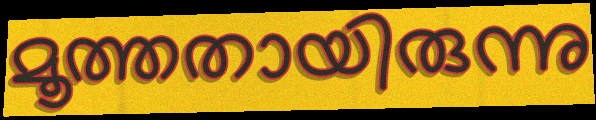
മൂത്തതായിരുന്നു